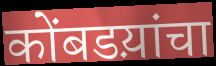
कोंबडय़ांचा